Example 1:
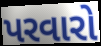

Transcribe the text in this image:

પરવારો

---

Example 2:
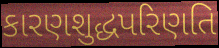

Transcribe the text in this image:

કારણશુદ્ધપરિણતિ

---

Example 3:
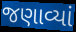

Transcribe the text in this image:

જણાવ્યાં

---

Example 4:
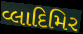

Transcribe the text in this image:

વ્લાદિમિર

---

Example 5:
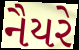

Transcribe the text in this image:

નૈયરે